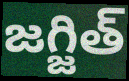
జగ్జిత్